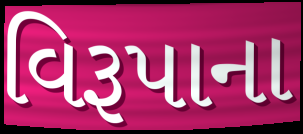
વિરૂપાના